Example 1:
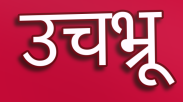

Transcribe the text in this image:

उचभ्रू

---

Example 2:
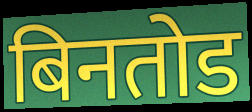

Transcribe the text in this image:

बिनतोड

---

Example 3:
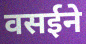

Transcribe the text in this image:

वसईने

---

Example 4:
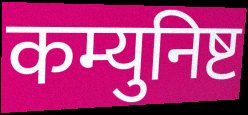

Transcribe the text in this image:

कम्युनिष्ट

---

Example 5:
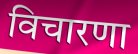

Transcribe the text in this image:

विचारणा